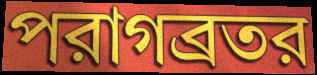
পরাগব্রতর